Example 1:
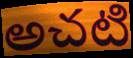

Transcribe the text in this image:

అచటి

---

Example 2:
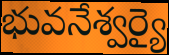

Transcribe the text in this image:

భువనేశ్వర్యై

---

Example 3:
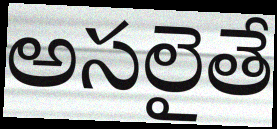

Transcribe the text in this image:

అసలైతే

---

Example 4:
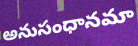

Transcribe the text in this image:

అనుసంధానమా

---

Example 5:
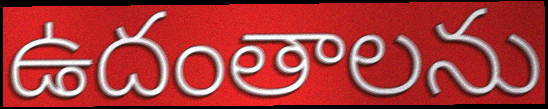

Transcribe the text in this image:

ఉదంతాలను